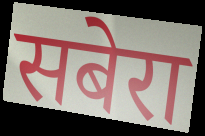
सबेरा